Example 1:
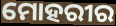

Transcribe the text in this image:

ମୋହରୀର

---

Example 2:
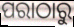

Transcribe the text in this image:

ପରାଠାରୁ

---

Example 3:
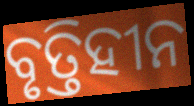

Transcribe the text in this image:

ବୃତ୍ତିହୀନ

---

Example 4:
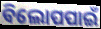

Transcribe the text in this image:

ବିଲୋପପାଇଁ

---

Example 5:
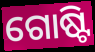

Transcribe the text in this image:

ଗୋଷ୍ଟି